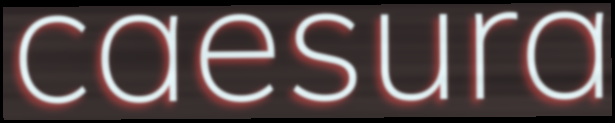
caesura